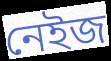
নেইজ